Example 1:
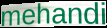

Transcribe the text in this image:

mehandi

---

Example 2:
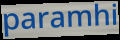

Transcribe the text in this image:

paramhi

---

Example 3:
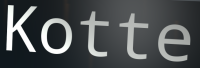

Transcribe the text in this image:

Kotte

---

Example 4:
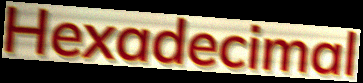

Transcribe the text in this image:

Hexadecimal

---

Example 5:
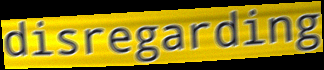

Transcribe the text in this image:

disregarding